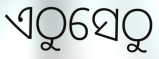
ଏଠୁସେଠୁ